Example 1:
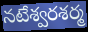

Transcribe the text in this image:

నటేశ్వరశర్మ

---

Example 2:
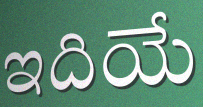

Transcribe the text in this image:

ఇదియే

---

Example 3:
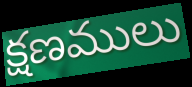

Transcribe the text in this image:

క్షణములు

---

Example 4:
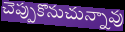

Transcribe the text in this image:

చెప్పుకొనుచున్నావు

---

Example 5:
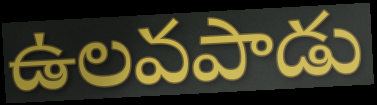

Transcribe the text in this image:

ఉలవపాడు